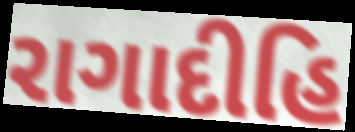
રાગાદીહિ